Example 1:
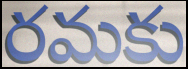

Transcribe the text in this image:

రమకు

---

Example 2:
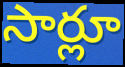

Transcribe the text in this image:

సార్లూ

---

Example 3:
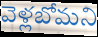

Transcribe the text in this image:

వెళ్లబోమని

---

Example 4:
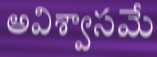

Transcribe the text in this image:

అవిశ్వాసమే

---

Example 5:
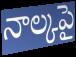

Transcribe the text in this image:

నాల్కపై